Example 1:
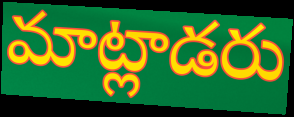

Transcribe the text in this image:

మాట్లాడరు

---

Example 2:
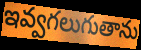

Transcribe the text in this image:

ఇవ్వగలుగుతాను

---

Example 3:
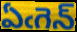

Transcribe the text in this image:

ఏఁగెన్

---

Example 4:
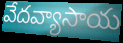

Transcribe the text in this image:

వేదవ్యాసాయ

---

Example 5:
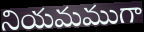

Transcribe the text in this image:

నియమముగా